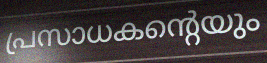
പ്രസാധകന്റെയും